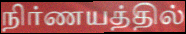
நிர்ணயத்தில்